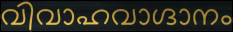
വിവാഹവാഗ്ദാനം